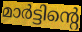
മാർട്ടിന്റെ